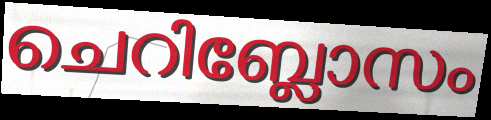
ചെറിബ്ലോസം